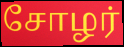
சோழர்